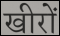
खीरों